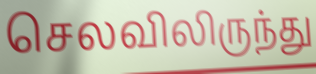
செலவிலிருந்து